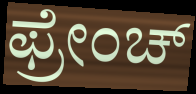
ಫ್ರೇಂಚ್